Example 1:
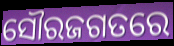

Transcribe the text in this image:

ସୌରଜଗତରେ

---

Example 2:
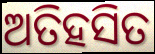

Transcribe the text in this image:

ଅତିହସିତ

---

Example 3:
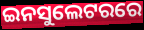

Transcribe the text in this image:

ଇନସୁଲେଟରରେ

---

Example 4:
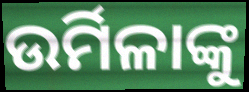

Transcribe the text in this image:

ଉର୍ମିଳାଙ୍କୁ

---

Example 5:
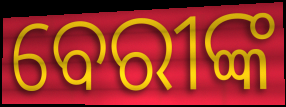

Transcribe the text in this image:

ବେରୀଙ୍କ